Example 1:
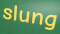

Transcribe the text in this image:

slung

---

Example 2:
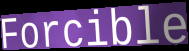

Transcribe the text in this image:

Forcible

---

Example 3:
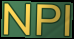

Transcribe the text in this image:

NPI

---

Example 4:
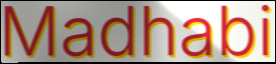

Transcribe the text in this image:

Madhabi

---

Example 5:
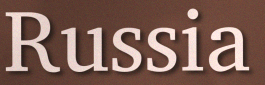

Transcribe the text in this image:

Russia